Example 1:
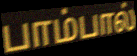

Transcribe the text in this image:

பாம்பால்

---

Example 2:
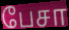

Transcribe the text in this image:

பேசா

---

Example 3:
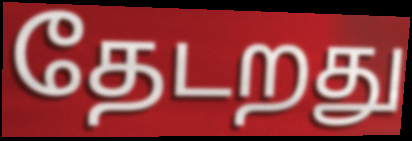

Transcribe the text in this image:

தேடறது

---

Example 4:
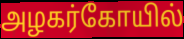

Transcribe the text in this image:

அழகர்கோயில்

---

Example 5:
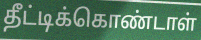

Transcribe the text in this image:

தீட்டிக்கொண்டாள்